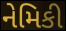
નેમિકી